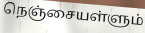
நெஞ்சையள்ளும்